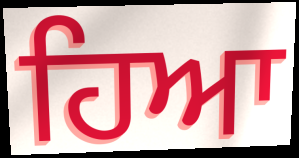
ਹਿਆ